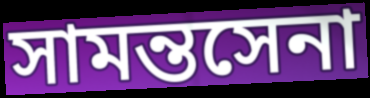
সামন্তসেনা